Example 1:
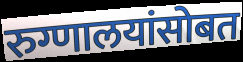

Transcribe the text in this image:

रुग्णालयांसोबत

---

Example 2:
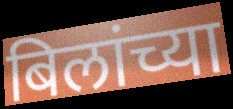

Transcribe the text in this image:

बिलांच्या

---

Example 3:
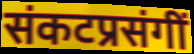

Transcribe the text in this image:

संकटप्रसंगीं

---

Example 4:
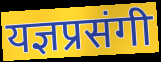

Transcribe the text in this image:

यज्ञप्रसंगी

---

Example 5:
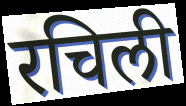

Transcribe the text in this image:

रचिली